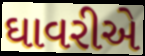
ઘાવરીએ